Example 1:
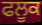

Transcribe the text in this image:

ਫਲੂਕ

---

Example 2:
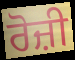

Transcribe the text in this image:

ਰੋਜ਼ੀ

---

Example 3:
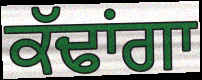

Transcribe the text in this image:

ਕੱਢਾਂਗਾ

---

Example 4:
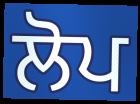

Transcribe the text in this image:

ਲੋਪ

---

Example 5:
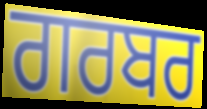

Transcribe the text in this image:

ਗਰਬਰ